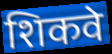
शिकवे